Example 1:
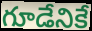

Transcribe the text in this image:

గూడేనికే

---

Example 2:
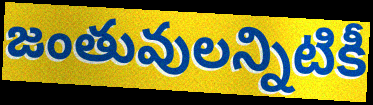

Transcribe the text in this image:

జంతువులన్నిటికీ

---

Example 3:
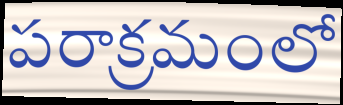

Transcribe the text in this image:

పరాక్రమంలో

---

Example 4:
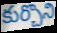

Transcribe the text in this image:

కుర్చొని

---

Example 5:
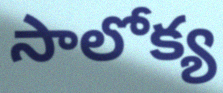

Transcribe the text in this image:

సాలోక్య